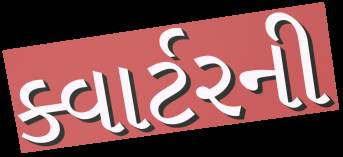
ક્વાર્ટરની